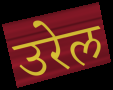
उरेल